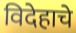
विदेहाचे